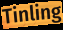
Tinling